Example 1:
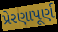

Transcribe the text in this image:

પ્રેરણાપૂર્ણ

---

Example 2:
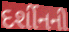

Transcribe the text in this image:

દર્શીનની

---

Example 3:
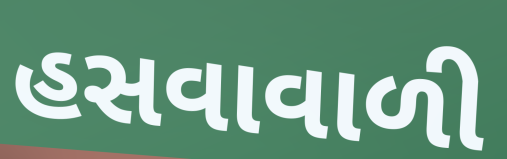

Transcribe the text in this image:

હસવાવાળી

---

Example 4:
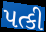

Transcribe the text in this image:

પત્કી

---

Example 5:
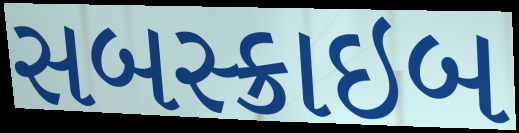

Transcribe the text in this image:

સબસ્ક્રાઇબ